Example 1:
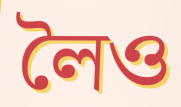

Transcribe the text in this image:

লৈও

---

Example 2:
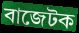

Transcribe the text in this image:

বাজেটক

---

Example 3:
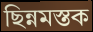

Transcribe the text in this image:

ছিন্নমস্তক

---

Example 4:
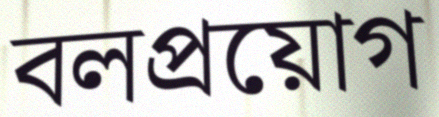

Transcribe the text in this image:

বলপ্ৰয়োগ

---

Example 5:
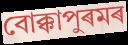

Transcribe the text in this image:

বোক্কাপুৰমৰ